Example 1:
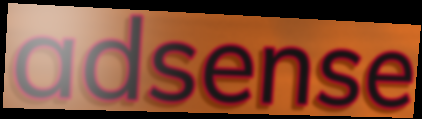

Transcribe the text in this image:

adsense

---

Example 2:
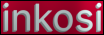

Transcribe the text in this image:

inkosi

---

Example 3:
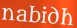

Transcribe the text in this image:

nabidh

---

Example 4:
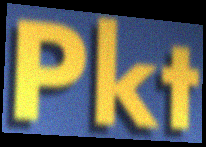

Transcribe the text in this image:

Pkt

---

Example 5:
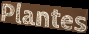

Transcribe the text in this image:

Plantes